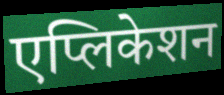
एप्लिकेशन